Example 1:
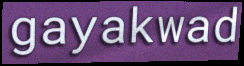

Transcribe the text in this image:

gayakwad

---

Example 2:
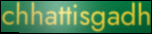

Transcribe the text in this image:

chhattisgadh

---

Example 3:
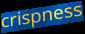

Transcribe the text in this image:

crispness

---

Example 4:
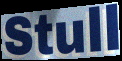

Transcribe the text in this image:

Stull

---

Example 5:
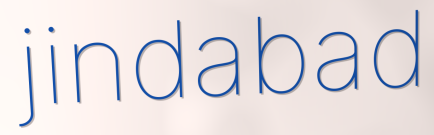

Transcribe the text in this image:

jindabad